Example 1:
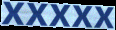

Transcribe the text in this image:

xxxxx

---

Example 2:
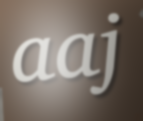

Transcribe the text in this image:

aaj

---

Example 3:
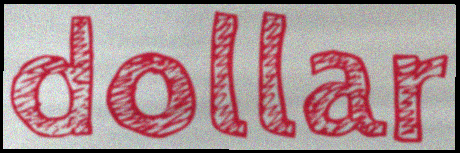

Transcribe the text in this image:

dollar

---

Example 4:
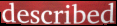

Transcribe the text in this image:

described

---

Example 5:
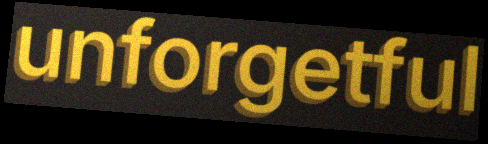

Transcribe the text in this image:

unforgetful